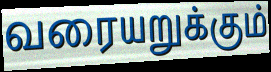
வரையறுக்கும்